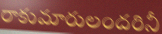
రాకుమారులందరినీ